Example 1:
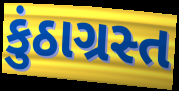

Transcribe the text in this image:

કુંઠાગ્રસ્ત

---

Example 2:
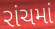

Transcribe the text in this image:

રાંચમાં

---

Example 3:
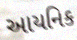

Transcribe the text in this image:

આયનિક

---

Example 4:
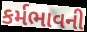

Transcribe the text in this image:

કર્મભાવની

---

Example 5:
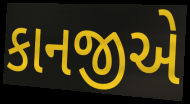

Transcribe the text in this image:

કાનજીએ